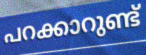
പറക്കാറുണ്ട്